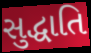
સુદ્ધાતિ